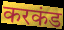
करकंड